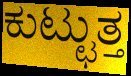
ಕುಟ್ಟುತ್ತ